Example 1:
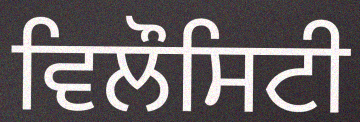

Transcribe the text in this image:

ਵਿਲੌਸਿਟੀ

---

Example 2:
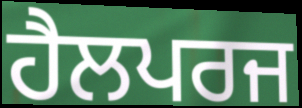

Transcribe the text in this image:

ਹੈਲਪਰਜ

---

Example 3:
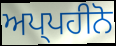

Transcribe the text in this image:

ਅਪ੍ਪਹੀਨੋ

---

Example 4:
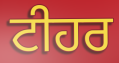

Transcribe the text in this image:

ਟੀਹਰ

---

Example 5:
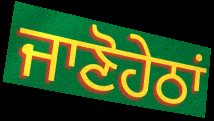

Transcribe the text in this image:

ਜਾਣੋਹੇਠਾਂ